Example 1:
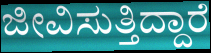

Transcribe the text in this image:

ಜೀವಿಸುತ್ತಿದ್ದಾರೆ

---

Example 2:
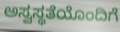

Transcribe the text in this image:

ಅಸ್ವಸ್ಥತೆಯೊಂದಿಗೆ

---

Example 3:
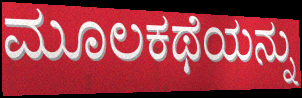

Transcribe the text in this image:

ಮೂಲಕಥೆಯನ್ನು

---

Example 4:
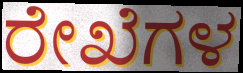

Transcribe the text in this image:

ರೇಖೆಗಳ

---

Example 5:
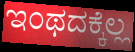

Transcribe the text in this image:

ಇಂಥದಕ್ಕೆಲ್ಲ